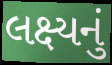
લક્ષ્યનું